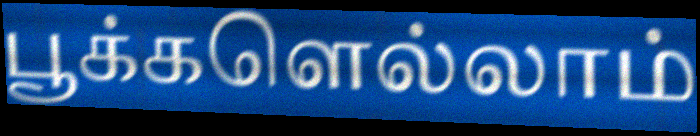
பூக்களெல்லாம்